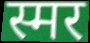
स्मर